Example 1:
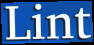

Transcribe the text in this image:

Lint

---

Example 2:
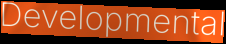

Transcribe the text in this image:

Developmental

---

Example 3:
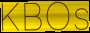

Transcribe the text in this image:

KBOs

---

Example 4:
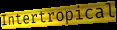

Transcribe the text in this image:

Intertropical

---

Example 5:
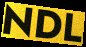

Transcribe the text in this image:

NDL